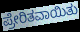
ಪ್ರೇರಿತವಾಯಿತು